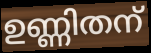
ഉണ്ണിതന്